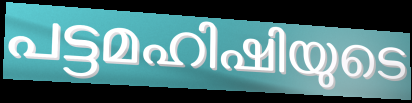
പട്ടമഹിഷിയുടെ